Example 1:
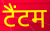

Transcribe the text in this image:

टैंटम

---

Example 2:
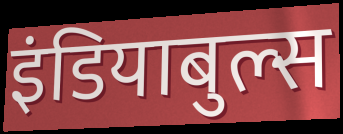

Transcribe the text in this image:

इंडियाबुल्‍स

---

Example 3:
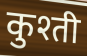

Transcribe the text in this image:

कुश्ती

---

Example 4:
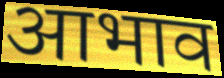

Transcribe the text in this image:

आभाव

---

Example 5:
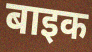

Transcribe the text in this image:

बाइक